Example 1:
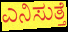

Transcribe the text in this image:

ಎನಿಸುತ್ತೆ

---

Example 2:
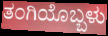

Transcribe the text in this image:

ತಂಗಿಯೊಬ್ಬಳು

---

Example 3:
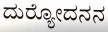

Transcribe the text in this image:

ದುರ್‍ಯೋದನನ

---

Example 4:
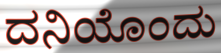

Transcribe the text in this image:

ದನಿಯೊಂದು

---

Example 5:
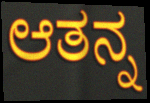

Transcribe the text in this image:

ಆತನ್ನ